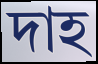
দাহ